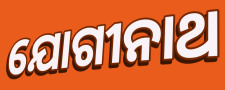
ଯୋଗୀନାଥ